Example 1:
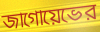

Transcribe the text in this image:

জাগোয়েভের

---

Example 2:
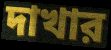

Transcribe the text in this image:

দাখার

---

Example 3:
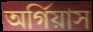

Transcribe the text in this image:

অর্গিয়াস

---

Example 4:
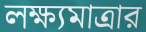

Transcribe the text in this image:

লক্ষ্যমাত্রার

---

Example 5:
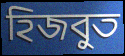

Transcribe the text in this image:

হিজবুত